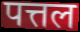
पत्तल